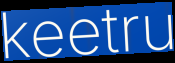
keetru